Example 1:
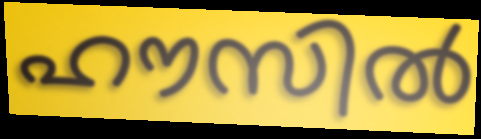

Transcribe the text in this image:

ഹൗസിൽ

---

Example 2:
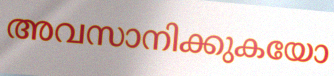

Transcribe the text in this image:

അവസാനിക്കുകയോ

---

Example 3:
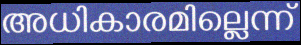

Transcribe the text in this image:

അധികാരമില്ലെന്ന്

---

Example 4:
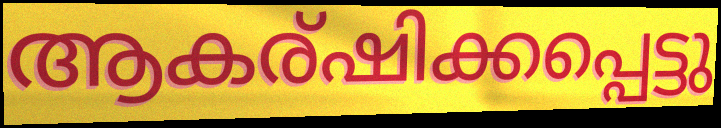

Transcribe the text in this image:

ആകര്ഷിക്കപ്പെട്ടു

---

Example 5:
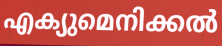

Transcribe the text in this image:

എക്യുമെനിക്കൽ